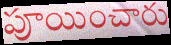
పూయించారు